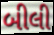
બીલી